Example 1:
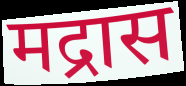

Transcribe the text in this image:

मद्रास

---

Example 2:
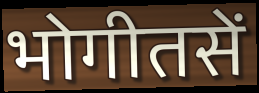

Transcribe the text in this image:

भोगीतसें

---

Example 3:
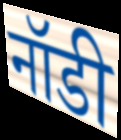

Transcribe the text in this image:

नॉडी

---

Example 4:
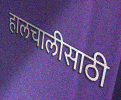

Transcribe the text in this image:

हालचालीसाठी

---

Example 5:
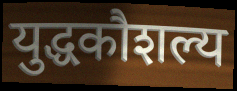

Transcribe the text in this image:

युद्धकौशल्य